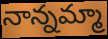
నాన్నమ్మా